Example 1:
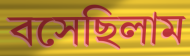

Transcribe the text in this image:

বসেছিলাম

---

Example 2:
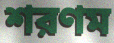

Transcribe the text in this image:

শরণম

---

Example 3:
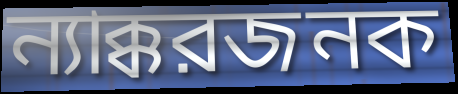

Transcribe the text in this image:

ন্যাক্করজনক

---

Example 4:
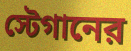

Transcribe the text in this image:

স্টেগানের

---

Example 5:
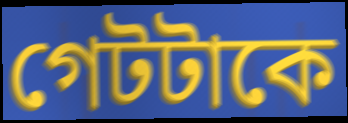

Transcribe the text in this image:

গেটটাকে